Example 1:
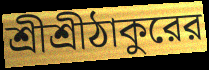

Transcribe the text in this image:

শ্রীশ্রীঠাকুরের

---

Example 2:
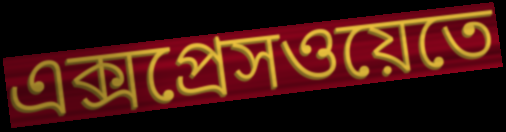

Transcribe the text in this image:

এক্সপ্রেসওয়েতে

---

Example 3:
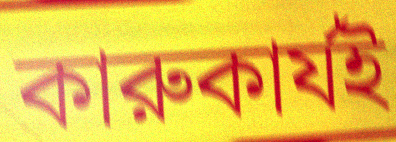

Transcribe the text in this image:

কারুকার্যই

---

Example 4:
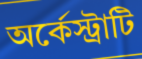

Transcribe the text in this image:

অর্কেস্ট্রাটি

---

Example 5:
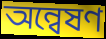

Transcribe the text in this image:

অন্বেষণ